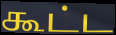
கூட்ட